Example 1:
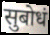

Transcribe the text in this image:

सुबोधं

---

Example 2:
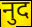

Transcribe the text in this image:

नुद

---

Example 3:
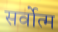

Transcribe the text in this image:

सर्वोत्म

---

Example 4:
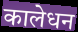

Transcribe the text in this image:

कालेधन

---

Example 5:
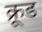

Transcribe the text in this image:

क्रूड